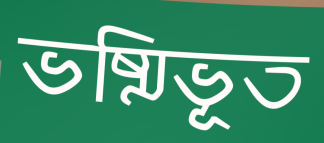
ভষ্মিভূত